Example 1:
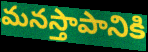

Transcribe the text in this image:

మనస్తాపానికి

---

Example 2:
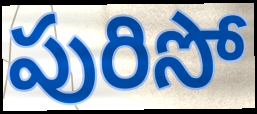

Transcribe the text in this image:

పురిసో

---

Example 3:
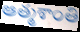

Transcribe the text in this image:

ఆత్మశాంతి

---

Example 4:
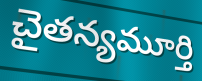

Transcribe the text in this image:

చైతన్యమూర్తి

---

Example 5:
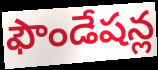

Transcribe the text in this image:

ఫౌండేషన్ల